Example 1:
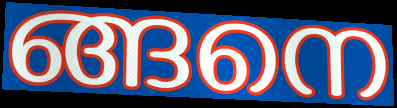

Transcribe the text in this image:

ങ്ങനെ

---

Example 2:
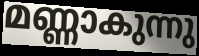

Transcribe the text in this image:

മണ്ണാകുന്നു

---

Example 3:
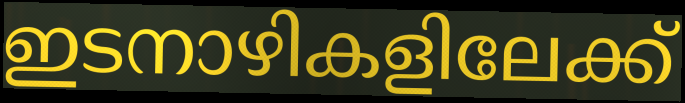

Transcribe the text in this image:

ഇടനാഴികളിലേക്ക്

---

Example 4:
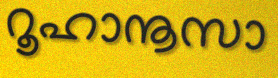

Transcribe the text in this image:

റൂഹാനൂസാ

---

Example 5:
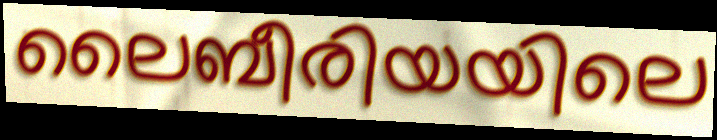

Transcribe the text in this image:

ലൈബീരിയയിലെ